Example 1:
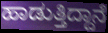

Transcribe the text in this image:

ಹಾಡುತ್ತಿದ್ದಾನೆ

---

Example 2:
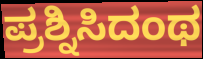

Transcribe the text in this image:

ಪ್ರಶ್ನಿಸಿದಂಥ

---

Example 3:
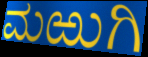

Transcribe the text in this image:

ಮಱುಗಿ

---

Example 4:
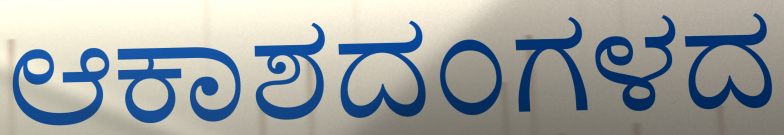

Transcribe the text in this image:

ಆಕಾಶದಂಗಳದ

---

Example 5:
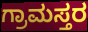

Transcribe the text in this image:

ಗ್ರಾಮಸ್ತರ